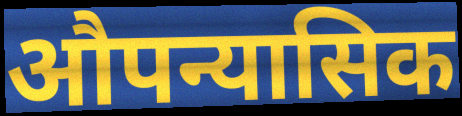
औपन्यासिक